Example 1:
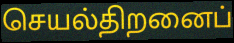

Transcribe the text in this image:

செயல்திறனைப்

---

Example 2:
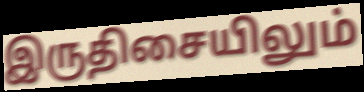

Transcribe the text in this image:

இருதிசையிலும்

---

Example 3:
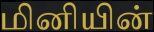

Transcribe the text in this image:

மினியின்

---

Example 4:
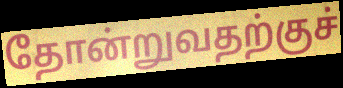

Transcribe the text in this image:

தோன்றுவதற்குச்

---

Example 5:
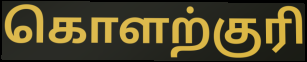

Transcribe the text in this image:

கொளற்குரி